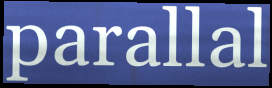
parallal